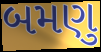
બમણુ